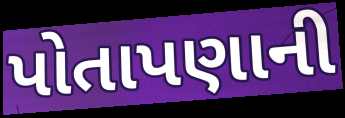
પોતાપણાની